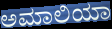
ಅಮಾಲಿಯಾ